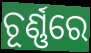
ଚୂର୍ଣ୍ଣରେ